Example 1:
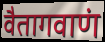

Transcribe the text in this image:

वैतागवाणं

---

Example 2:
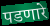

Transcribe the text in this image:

पडणारे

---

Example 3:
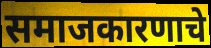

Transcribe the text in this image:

समाजकारणाचे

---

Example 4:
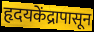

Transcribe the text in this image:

हृदयकेंद्रापासून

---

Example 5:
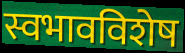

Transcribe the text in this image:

स्वभावविशेष